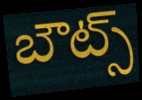
బౌట్స్